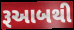
રૂઆબથી